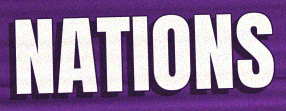
NATIONS